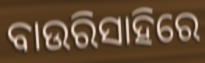
ବାଉରିସାହିରେ